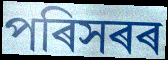
পৰিসৰৰ